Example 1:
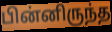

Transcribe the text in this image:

பின்னிருந்த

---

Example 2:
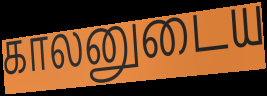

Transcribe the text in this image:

காலனுடைய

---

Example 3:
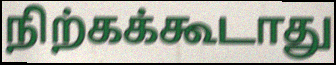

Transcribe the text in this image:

நிற்கக்கூடாது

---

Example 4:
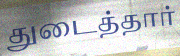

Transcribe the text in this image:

துடைத்தார்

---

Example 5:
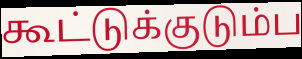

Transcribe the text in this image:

கூட்டுக்குடும்ப